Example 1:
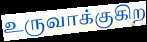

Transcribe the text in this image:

உருவாக்குகிற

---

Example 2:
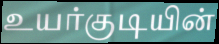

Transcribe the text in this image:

உயர்குடியின்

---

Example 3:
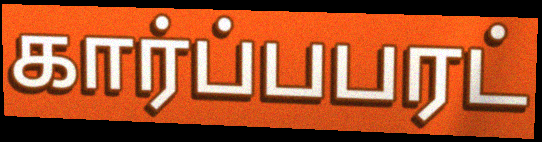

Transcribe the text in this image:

கார்ப்பபரட்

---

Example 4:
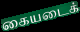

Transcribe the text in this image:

கையடைக்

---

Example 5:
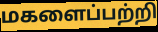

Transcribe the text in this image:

மகளைப்பற்றி